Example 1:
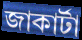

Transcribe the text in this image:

জাকাৰ্টা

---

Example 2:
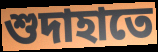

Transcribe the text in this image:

শুদাহাতে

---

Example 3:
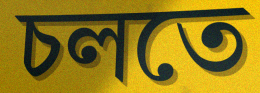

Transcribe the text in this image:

চলতে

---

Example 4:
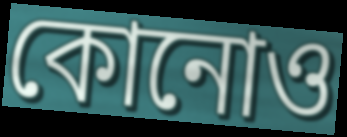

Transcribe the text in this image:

কোনোও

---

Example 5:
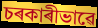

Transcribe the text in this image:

চৰকাৰীভাৱে